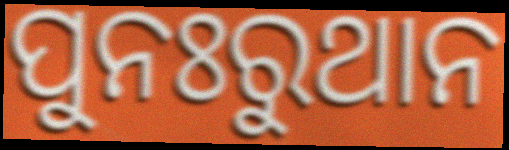
ପୁନଃରୁଥାନ